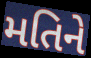
મતિને